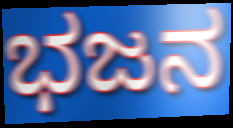
ಭಜನ